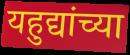
यहुद्यांच्या